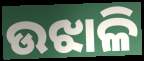
ଉଝାଳି